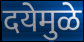
दयेमुळे